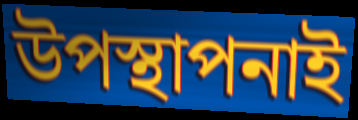
উপস্থাপনাই